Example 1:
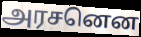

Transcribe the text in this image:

அரசனென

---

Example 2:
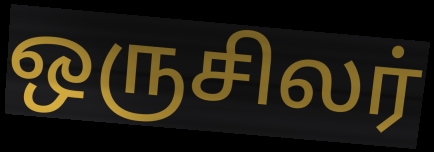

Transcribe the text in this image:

ஒருசிலர்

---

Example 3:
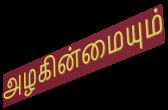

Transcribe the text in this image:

அழகின்மையும்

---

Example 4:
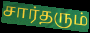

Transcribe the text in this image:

சார்தரும்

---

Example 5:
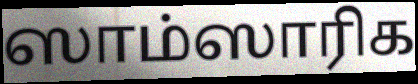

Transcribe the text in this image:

ஸாம்ஸாரிக